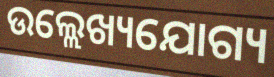
ଉଲ୍ଲେଖ୍ୟଯୋଗ୍ୟ